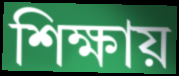
শিক্ষায়